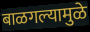
बाळगल्यामुळे